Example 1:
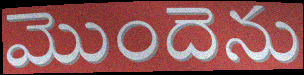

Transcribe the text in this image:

మొందెను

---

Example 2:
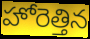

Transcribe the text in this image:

హోరెత్తిన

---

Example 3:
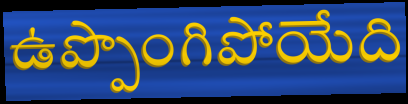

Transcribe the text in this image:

ఉప్పొంగిపోయేది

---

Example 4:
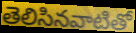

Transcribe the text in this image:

తెలిసినవాటితో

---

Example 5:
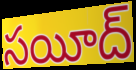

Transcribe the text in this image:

సయీద్